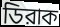
ডিরাক